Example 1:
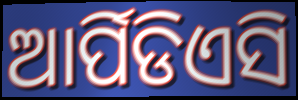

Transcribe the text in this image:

ଆର୍ପିଡିଏସି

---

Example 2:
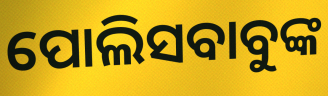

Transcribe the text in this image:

ପୋଲିସବାବୁଙ୍କ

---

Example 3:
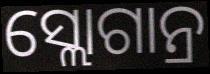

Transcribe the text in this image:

ସ୍ଲୋଗାନ୍ର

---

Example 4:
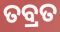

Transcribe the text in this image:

ତବ୍ରତ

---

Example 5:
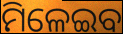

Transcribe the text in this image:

ମିଳେଇବ